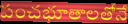
పంచభూతాలతోనే